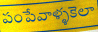
పంపేవాళ్ళకెలా